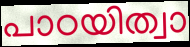
പാഠയിത്വാ